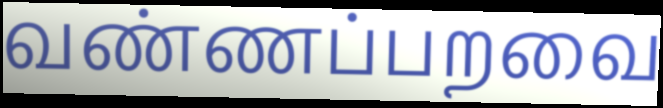
வண்ணப்பறவை